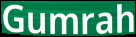
Gumrah